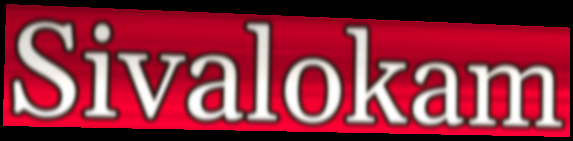
Sivalokam